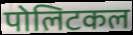
पोलिटकल